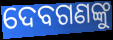
ଦେବଗଣଙ୍କୁ